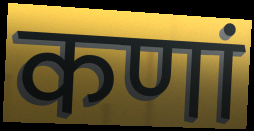
कणां